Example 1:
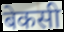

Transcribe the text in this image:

बेकसी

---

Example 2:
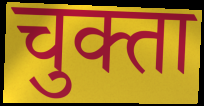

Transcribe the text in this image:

चुक्ता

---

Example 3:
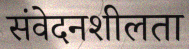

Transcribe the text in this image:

संवेदनशीलता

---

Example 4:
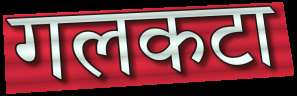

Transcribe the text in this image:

गलकटा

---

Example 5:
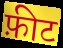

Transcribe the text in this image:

फ़ीट